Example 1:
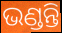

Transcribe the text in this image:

ଭଣ୍ଡନ୍ତି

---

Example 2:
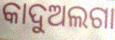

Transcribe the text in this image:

କାଦୁଅଲଗା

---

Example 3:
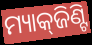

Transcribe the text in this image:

ମ୍ୟାକ୍‌ଜିଣ୍ଟି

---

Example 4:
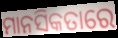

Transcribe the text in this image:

ମାନସିକତାରେ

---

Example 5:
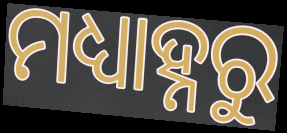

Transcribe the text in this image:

ମଧ୍ୟାହ୍ନରୁ